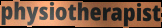
physiotherapist